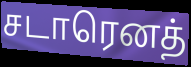
சடாரெனத்